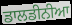
ਡਾਲਡੀਨੀਆ